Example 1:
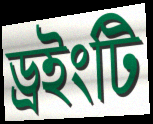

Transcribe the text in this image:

ড্রইংটি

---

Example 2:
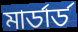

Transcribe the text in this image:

মার্ডার্ড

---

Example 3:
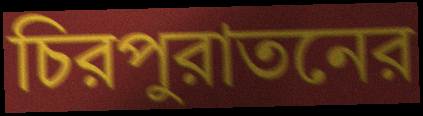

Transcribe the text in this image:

চিরপুরাতনের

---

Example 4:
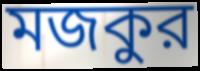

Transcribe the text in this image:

মজকুর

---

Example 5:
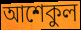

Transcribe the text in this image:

আশেকুল